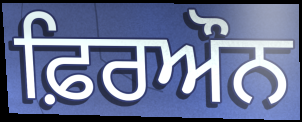
ਫ਼ਿਰਔਨ